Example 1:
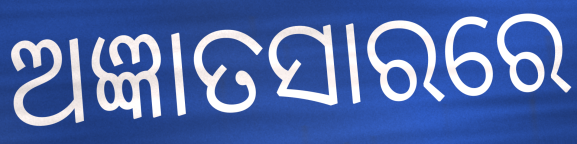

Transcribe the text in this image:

ଅଜ୍ଞାତସାରରେ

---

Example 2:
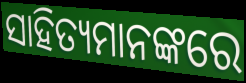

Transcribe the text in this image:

ସାହିତ୍ୟମାନଙ୍କରେ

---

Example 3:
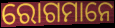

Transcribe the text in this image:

ରୋଗମାନେ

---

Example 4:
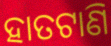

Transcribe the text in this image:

ହାତଟାଣି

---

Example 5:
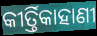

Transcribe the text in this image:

କୀର୍ତ୍ତିକାହାଣୀ